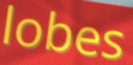
lobes